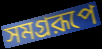
সমগ্ররূপে